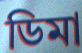
ডিমা